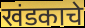
खंडकाचे